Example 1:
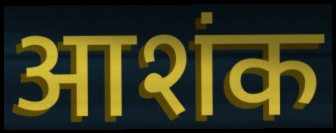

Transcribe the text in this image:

आशंक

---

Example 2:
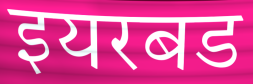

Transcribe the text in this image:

इयरबड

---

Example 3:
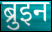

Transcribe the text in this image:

ब्रुइन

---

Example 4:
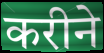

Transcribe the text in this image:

करीने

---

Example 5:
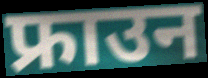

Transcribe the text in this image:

फ्राउन